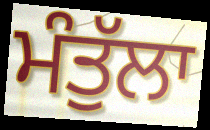
ਮੰਤੁੱਲਾ